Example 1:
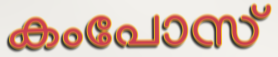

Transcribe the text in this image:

കംപോസ്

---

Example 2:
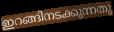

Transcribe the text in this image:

ഇറങ്ങിനടക്കുന്നതു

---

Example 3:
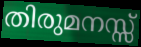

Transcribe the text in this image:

തിരുമനസ്സ്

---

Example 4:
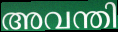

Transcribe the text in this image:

അവന്തി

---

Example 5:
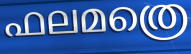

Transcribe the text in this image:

ഫലമത്രെ